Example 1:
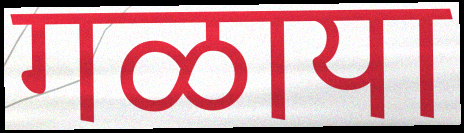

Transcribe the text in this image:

गळाया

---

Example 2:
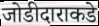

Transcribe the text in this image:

जोडीदाराकडे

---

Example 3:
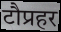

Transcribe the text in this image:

टौप्रहर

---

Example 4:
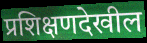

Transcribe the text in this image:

प्रशिक्षणदेखील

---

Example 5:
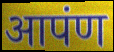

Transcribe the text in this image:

आपंण